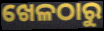
ଖେଳଠାରୁ